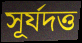
সূর্যদত্ত